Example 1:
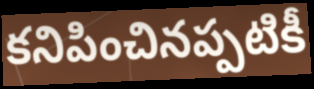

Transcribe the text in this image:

కనిపించినప్పటికీ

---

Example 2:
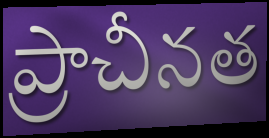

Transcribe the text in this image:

ప్రాచీనత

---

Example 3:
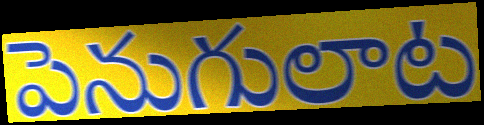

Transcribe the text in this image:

పెనుగులాట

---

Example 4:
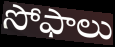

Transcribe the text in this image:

సోఫాలు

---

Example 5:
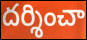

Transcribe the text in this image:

దర్శించా